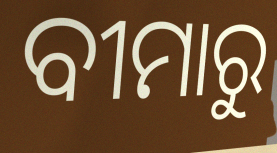
ବୀମାରୁ